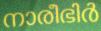
നാരീഭിർ